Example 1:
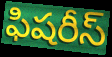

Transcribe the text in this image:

ఫిషరీస్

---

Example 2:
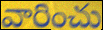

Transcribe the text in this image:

వారించు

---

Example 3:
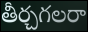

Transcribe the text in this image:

తీర్చగలరా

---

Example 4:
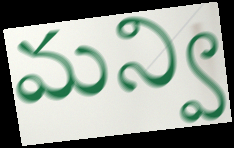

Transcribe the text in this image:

మన్వి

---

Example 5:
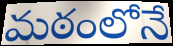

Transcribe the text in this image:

మఠంలోనే